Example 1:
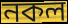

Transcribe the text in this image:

নকল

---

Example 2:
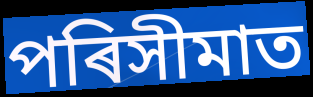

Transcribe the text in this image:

পৰিসীমাত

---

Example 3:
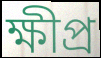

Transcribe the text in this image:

ক্ষীপ্ৰ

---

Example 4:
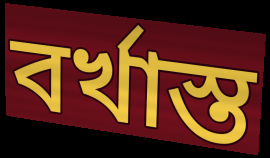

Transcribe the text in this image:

বৰ্খাস্ত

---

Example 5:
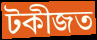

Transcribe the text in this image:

টকীজত